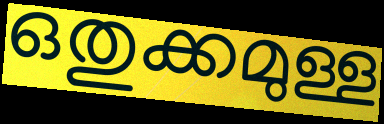
ഒതുക്കമുള്ള